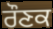
ਰੌਣਕ